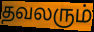
தவலரும்